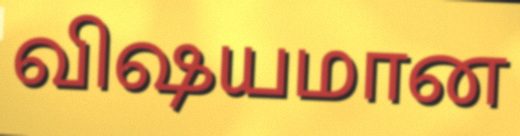
விஷயமான